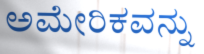
ಅಮೇರಿಕವನ್ನು